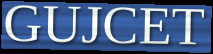
GUJCET